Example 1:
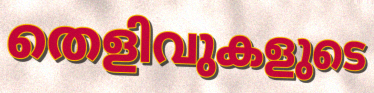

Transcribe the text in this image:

തെളിവുകളുടെ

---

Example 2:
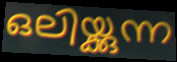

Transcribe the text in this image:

ഒലിയ്ക്കുന്ന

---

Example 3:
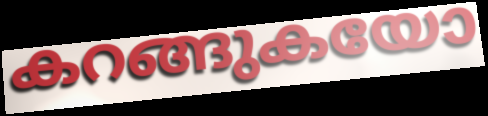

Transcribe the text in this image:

കറങ്ങുകയോ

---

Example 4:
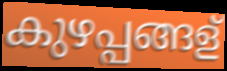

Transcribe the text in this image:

കുഴപ്പങ്ങള്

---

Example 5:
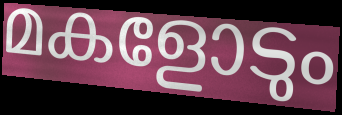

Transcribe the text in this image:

മകളോടും